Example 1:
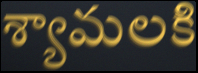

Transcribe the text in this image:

శ్యామలకి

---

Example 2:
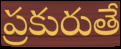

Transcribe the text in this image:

ప్రకురుతే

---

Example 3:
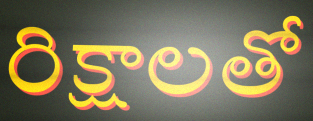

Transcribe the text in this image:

రిక్షాలతో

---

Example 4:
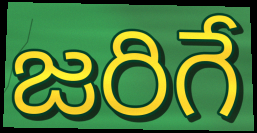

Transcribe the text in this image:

జరిగే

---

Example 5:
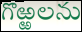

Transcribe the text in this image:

గొఱ్ఱలను